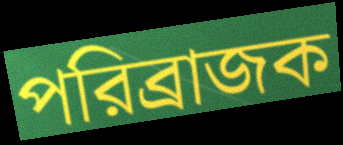
পরিব্রাজক